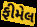
ફીમેલ